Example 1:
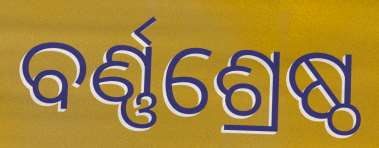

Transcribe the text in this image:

ବର୍ଣ୍ଣଶ୍ରେଷ୍ଠ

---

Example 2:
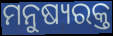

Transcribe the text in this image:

ମନୁଷ୍ଯରକ୍ତ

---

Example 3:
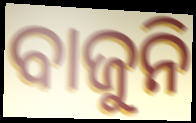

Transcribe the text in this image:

ବାଜୁନି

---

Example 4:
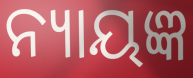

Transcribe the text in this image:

ନ୍ୟାୟଜ୍ଞ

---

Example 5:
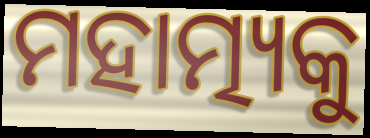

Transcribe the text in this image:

ମହାତ୍ମ୍ୟକୁ